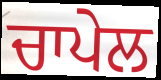
ਚਾਪੇਲ